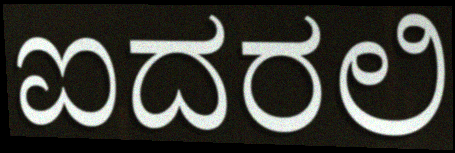
ಐದರಲಿ